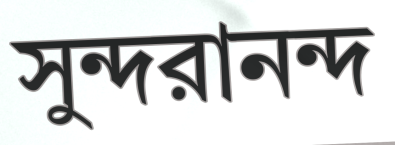
সুন্দরানন্দ